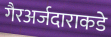
गैरअर्जदाराकडे